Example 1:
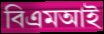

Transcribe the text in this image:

বিএমআই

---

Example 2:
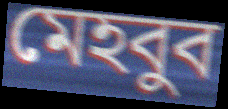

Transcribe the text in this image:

মেহবুব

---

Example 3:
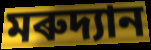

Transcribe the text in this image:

মৰুদ্যান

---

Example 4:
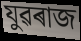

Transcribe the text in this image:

যুৱৰাজ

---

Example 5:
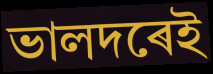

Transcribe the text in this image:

ভালদৰেই